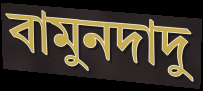
বামুনদাদু